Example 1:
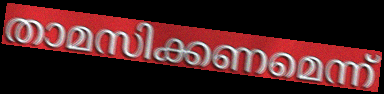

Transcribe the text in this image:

താമസിക്കണമെന്ന്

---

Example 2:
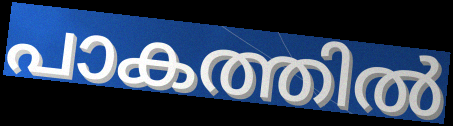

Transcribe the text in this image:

പാകത്തിൽ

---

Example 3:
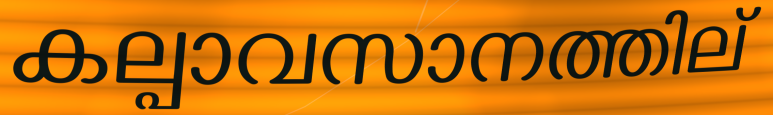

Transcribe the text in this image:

കല്പാവസാനത്തില്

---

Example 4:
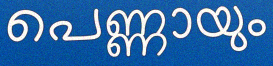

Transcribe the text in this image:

പെണ്ണായും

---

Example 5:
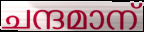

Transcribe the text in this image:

ചന്ദമാന്